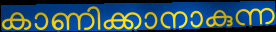
കാണിക്കാനാകുന്ന